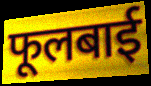
फूलबाई